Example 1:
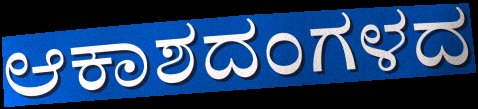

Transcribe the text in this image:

ಆಕಾಶದಂಗಳದ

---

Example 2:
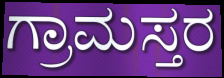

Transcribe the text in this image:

ಗ್ರಾಮಸ್ತರ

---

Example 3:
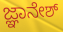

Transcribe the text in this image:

ಜ್ಞಾನೇಶ್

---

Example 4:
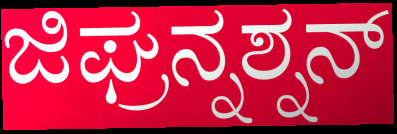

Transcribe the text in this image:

ಜಿಘ್ರನ್ನಶ್ನನ್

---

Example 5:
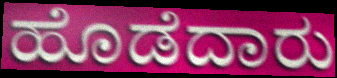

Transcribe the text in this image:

ಹೊಡೆದಾರು